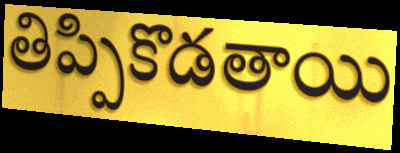
తిప్పికొడతాయి